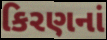
કિરણનાં